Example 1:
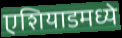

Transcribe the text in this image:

एशियाडमध्ये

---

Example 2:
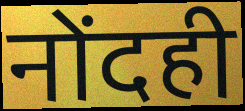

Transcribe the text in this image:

नोंदही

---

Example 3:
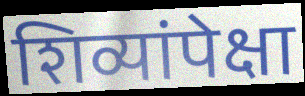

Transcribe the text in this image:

शिव्यांपेक्षा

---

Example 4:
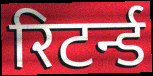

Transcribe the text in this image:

रिटर्न्ड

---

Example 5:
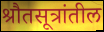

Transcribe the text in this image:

श्रौतसूत्रांतील